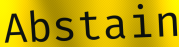
Abstain